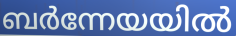
ബർന്നേയയിൽ